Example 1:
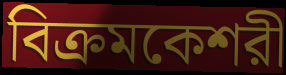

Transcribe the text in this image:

বিক্রমকেশরী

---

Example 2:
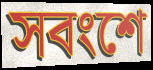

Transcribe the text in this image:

সবংশে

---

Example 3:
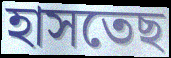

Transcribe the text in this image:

হাসতেছ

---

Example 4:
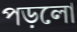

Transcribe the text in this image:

পড়লো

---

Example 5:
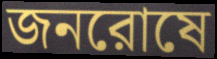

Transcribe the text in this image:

জনরোষে